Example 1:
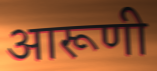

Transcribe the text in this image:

आरूणी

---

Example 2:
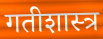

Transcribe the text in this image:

गतीशास्त्र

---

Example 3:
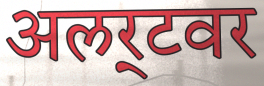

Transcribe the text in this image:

अलर्टवर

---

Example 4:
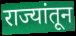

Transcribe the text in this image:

राज्यांतून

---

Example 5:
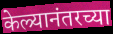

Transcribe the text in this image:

केल्यानंतरच्या